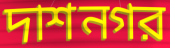
দাশনগর